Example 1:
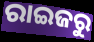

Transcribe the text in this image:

ରାଇଜରୁ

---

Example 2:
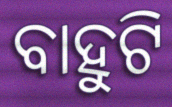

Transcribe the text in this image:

ବାହୁଟି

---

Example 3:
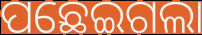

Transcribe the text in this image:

ପଛେଇଗଲା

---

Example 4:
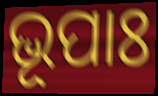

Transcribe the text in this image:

ଭୂପାଃ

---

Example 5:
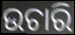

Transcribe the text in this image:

ଉଚାରି